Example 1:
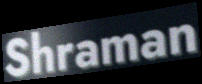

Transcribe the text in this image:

Shraman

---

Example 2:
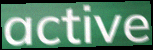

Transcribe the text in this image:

active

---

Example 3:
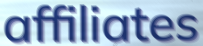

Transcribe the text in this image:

affiliates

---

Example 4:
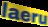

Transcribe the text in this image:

laeru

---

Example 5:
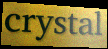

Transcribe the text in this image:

crystal